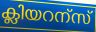
ക്ലിയറന്സ്